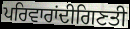
ਪਰਿਵਾਰਾਂਦੀਗਿਣਤੀ